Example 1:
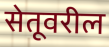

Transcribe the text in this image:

सेतूवरील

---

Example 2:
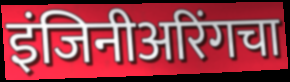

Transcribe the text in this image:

इंजिनीअरिंगचा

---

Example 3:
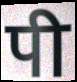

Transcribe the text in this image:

पी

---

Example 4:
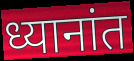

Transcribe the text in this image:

ध्यानांत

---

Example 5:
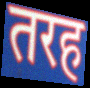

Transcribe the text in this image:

तरह